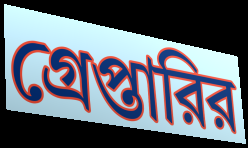
গ্রেপ্তারির